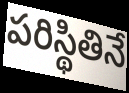
పరిస్థితినే